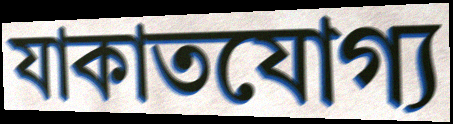
যাকাতযোগ্য